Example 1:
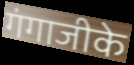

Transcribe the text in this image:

गंगाजीके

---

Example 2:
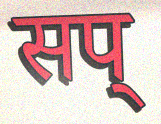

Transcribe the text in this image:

सप्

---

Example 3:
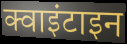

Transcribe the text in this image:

क्वाइंटाइन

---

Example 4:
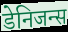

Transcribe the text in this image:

डेनिजन्स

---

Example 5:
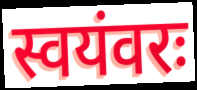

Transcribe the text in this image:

स्वयंवरः